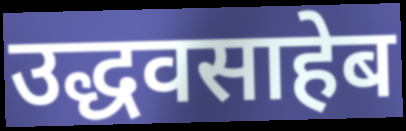
उद्धवसाहेब